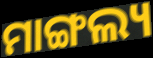
ମାଙ୍ଗଲ୍ୟ